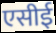
एसीई